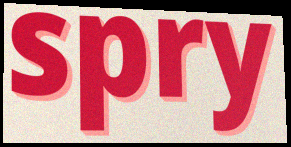
spry